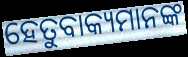
ହେତୁବାକ୍ୟମାନଙ୍କ